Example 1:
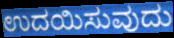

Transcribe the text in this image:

ಉದಯಿಸುವುದು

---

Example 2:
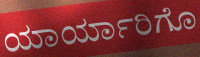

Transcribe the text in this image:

ಯಾರ್ಯಾರಿಗೊ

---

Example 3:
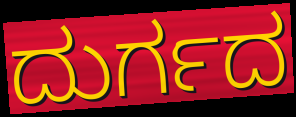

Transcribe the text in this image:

ದುರ್ಗದ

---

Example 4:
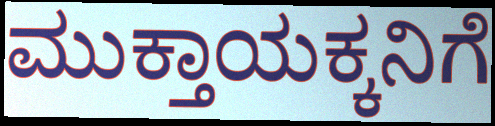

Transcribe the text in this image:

ಮುಕ್ತಾಯಕ್ಕನಿಗೆ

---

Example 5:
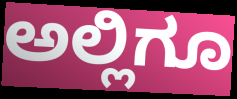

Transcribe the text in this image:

ಅಲ್ಲಿಗೂ